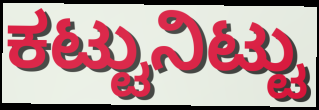
ಕಟ್ಟುನಿಟ್ಟು